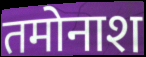
तमोनाश